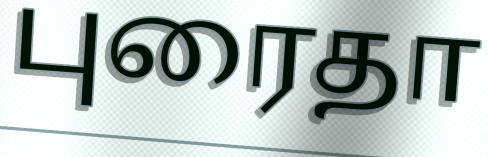
புரைதா